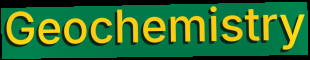
Geochemistry